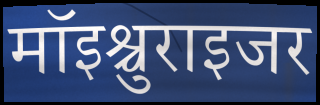
मॉइश्चुराइजर